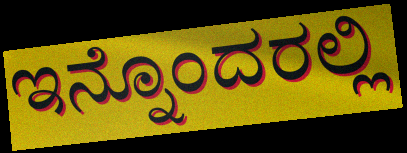
ಇನ್ನೊಂದರಲ್ಲಿ